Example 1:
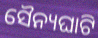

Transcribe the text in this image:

ସୈନ୍ୟଘାଟି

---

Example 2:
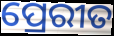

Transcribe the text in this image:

ପ୍ରେରୀତ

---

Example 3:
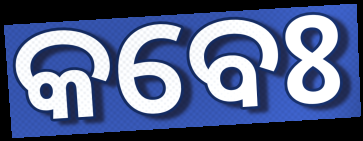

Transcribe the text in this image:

କବେଃ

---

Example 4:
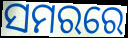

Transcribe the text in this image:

ସମରରେ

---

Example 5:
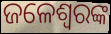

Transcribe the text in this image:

ଜଳେଶ୍ଵରଙ୍କ